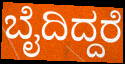
ಬೈದಿದ್ದರೆ